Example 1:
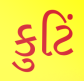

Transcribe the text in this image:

કુટિં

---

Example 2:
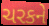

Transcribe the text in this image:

ચરકને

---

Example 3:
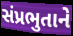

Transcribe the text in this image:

સંપ્રભુતાને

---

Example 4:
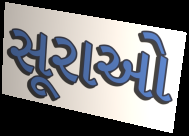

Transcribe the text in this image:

સૂરાઓ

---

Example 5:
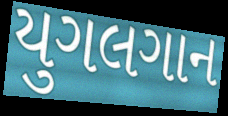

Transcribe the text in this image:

યુગલગાન